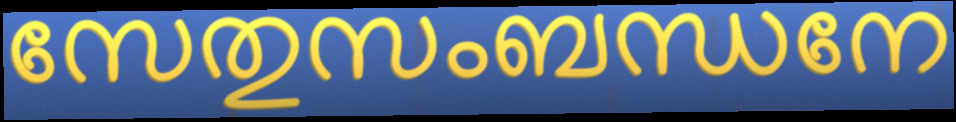
സേതുസംബന്ധനേ